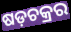
ଷଡ଼ଚକ୍ରର